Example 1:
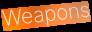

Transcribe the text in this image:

Weapons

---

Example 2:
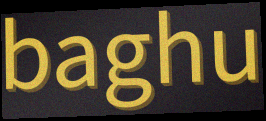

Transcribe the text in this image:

baghu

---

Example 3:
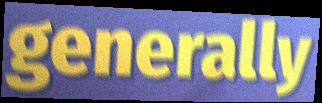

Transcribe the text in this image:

generally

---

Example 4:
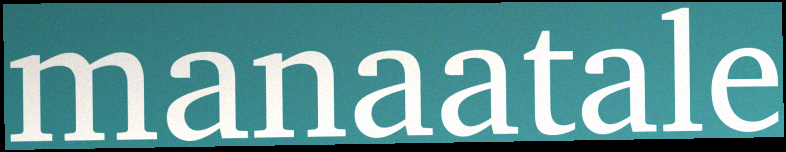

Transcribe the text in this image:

manaatale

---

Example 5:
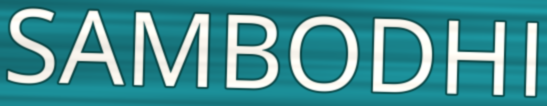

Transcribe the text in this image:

SAMBODHI